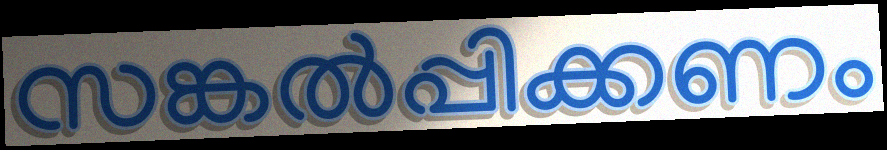
സങ്കൽപ്പിക്കണം